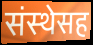
संस्थेसह